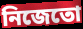
নিজেতো